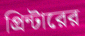
প্রিন্টারের